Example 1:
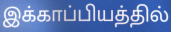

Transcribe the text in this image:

இக்காப்பியத்தில்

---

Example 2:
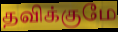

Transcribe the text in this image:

தவிக்குமே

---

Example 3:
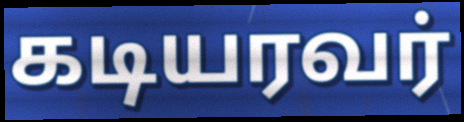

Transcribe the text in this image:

கடியரவர்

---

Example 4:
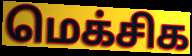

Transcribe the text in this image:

மெக்சிக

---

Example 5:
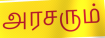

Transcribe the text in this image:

அரசரும்